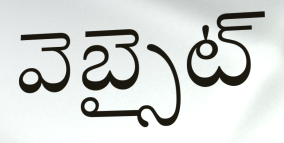
వెబ్సైట్